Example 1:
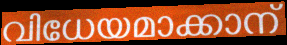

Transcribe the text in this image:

വിധേയമാക്കാന്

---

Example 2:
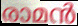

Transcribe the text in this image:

രാമൻ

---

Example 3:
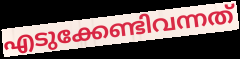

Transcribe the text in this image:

എടുക്കേണ്ടിവന്നത്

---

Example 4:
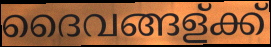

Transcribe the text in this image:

ദൈവങ്ങള്ക്ക്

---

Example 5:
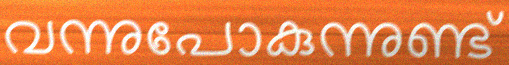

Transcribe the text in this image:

വന്നുപോകുന്നുണ്ട്